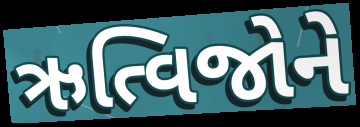
ઋત્વિજોને